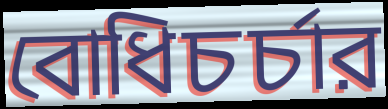
বোধিচর্চার